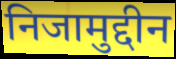
निजामुद्दीन